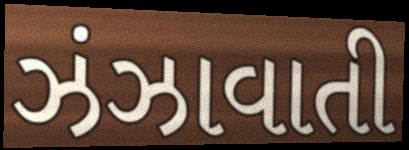
ઝંઝાવાતી